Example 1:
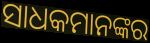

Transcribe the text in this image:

ସାଧକମାନଙ୍କର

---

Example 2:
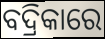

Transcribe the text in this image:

ବଦ୍ରିକାରେ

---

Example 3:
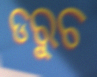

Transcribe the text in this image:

ଡରୁଚ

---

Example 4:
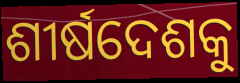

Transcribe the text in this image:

ଶୀର୍ଷଦେଶକୁ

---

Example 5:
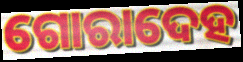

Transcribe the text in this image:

ଗୋରାଦେହ